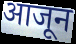
आजून